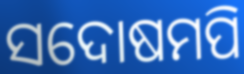
ସଦୋଷମପି